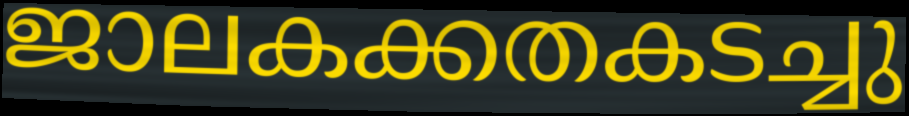
ജാലകക്കതകടച്ചു